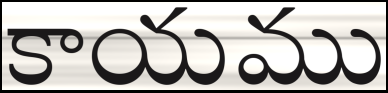
కాయము